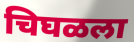
चिघळला